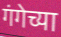
गंगेच्या